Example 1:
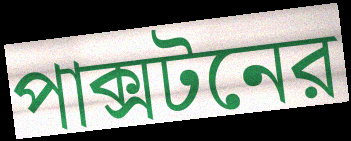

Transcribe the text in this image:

পাক্সটনের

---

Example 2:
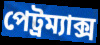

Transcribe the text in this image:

পেট্রম্যাক্স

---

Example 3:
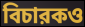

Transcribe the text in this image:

বিচারকও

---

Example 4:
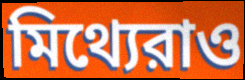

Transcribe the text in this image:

মিথ্যেরাও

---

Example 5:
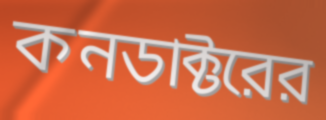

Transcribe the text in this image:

কনডাক্টরের